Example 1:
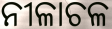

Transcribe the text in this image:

ନୀଳାଚଳ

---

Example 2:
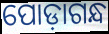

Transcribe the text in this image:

ପୋଡ଼ାଗନ୍ଧ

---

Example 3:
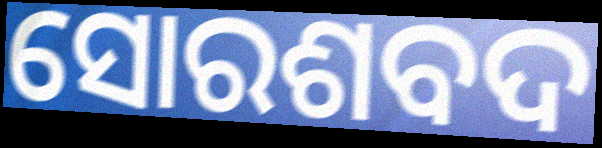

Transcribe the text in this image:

ସୋରଶବଦ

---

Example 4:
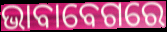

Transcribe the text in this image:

ଭାବାବେଗରେ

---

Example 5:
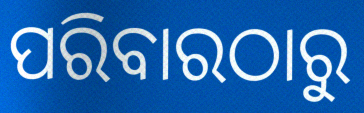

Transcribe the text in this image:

ପରିବାରଠାରୁ